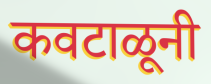
कवटाळूनी